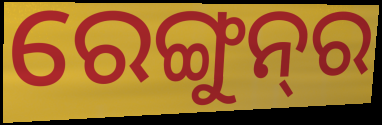
ରେଙ୍ଗୁନ୍‌ର